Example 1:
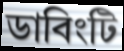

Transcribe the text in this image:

ডাবিংটি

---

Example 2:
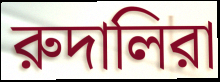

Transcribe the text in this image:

রুদালিরা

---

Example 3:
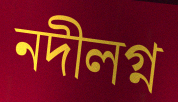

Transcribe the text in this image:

নদীলগ্ন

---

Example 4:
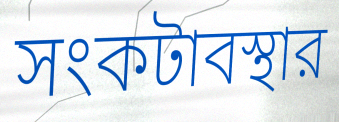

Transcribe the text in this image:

সংকটাবস্থার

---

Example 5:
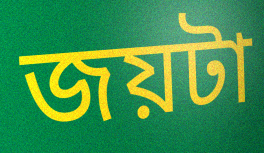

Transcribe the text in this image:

জয়টা